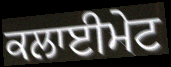
ਕਲਾਈਮੇਟ